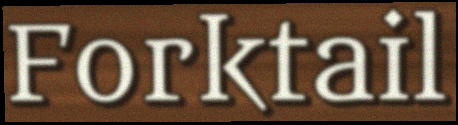
Forktail